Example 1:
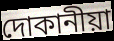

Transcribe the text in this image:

দোকানীয়া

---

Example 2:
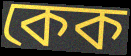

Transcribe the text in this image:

কেক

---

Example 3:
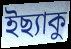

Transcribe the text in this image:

ইছ্যাকু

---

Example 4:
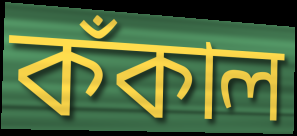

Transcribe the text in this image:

কঁকাল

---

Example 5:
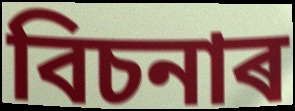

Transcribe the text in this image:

বিচনাৰ